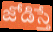
జోడిస్తే